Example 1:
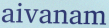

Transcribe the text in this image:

aivanam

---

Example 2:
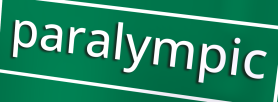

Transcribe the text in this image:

paralympic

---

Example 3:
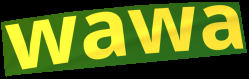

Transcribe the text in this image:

wawa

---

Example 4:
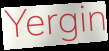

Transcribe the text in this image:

Yergin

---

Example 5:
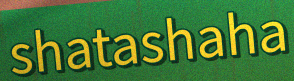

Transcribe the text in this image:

shatashaha